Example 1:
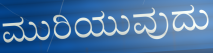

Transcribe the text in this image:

ಮುರಿಯುವುದು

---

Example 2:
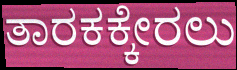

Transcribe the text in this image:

ತಾರಕಕ್ಕೇರಲು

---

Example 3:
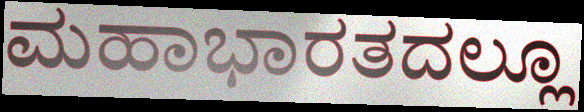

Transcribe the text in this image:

ಮಹಾಭಾರತದಲ್ಲೂ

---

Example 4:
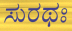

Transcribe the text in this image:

ಸುರಥಃ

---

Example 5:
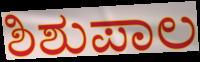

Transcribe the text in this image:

ಶಿಶುಪಾಲ